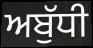
ਅਬੁੱਧੀ